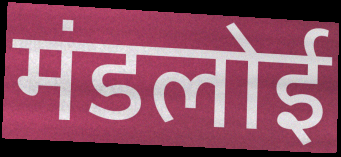
मंडलोई